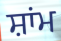
ਸ਼ਾਂਮ